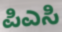
ಪಿಎಸಿ